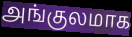
அங்குலமாக